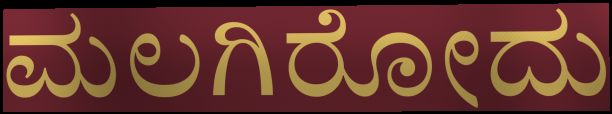
ಮಲಗಿರೋದು